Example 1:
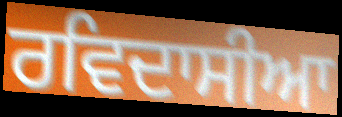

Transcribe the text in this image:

ਰਵਿਦਾਸੀਆ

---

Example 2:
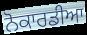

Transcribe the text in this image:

ਨੋਕਾਰਡੀਆ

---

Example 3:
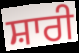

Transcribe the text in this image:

ਸ਼ਾਰੀ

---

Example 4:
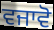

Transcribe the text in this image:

ਵਜਾਵੋ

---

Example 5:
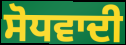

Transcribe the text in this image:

ਸੋਧਵਾਦੀ